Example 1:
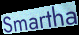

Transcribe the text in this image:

Smartha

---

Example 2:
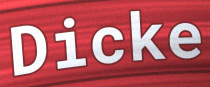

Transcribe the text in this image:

Dicke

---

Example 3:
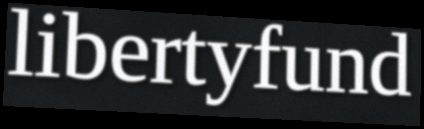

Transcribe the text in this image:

libertyfund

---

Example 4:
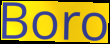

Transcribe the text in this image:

Boro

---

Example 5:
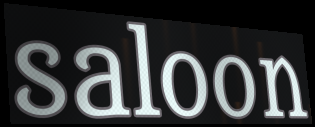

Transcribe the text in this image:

saloon